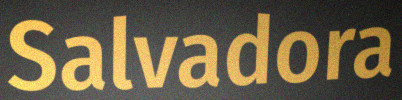
Salvadora